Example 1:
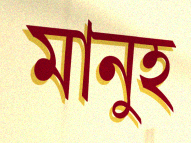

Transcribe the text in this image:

মানুহ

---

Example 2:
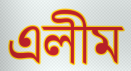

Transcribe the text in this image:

এলীম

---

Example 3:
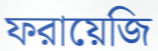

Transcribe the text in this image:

ফরায়েজি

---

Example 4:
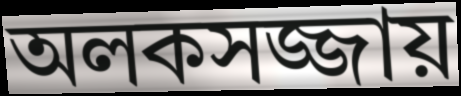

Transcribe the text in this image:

অলকসজ্জায়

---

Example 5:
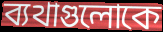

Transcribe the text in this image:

ব্যথাগুলোকে